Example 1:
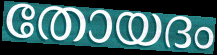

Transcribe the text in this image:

തോയദം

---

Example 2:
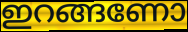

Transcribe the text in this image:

ഇറങ്ങണോ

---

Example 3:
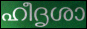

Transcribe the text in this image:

ഹീദൃശാ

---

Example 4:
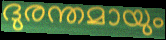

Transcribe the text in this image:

ദുരന്തമായും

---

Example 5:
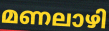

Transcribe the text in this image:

മണലാഴി